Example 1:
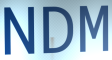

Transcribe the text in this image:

NDM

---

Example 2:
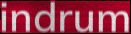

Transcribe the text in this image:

indrum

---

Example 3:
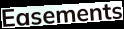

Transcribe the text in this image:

Easements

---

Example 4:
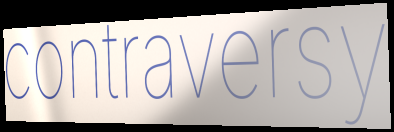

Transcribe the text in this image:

contraversy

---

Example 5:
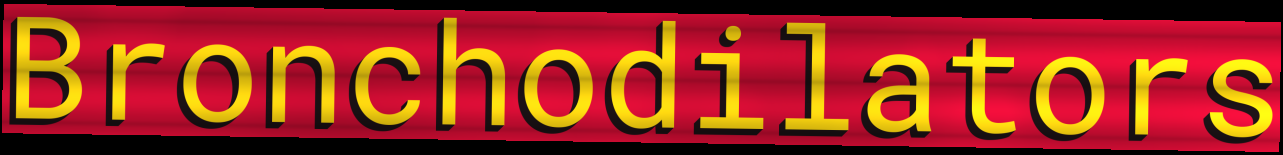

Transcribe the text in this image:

Bronchodilators